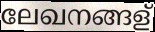
ലേഖനങ്ങള്